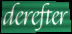
derefter